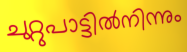
ചുറ്റുപാട്ടിൽനിന്നും